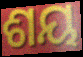
ଶୟ